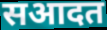
सआदत